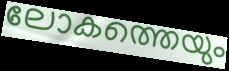
ലോകത്തെയും